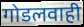
गोडलवाही